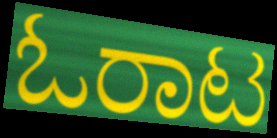
ಓರಾಟ